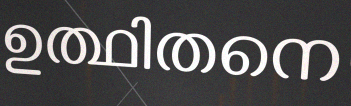
ഉത്ഥിതനെ